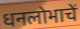
धनलोभाचें